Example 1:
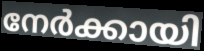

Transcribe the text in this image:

നേർക്കായി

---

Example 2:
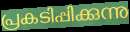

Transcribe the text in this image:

പ്രകടിപ്പിക്കുന്നു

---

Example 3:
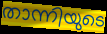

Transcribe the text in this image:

താന്നിയുടെ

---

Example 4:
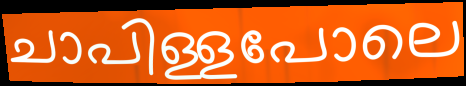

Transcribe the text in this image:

ചാപിള്ളപോലെ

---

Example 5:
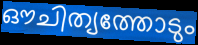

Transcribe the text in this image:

ഔചിത്യത്തോടും